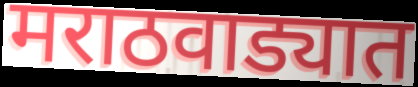
मराठवाड्यात